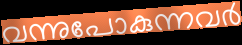
വന്നുപോകുന്നവർ